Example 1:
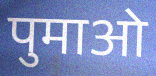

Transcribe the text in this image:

पुमाओ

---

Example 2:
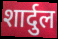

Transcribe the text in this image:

शार्दुल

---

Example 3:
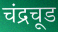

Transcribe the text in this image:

चंद्रचूड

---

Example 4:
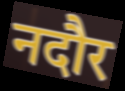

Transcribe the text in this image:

नदौर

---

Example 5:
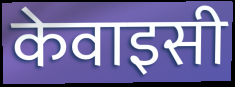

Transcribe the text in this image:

केवाइसी